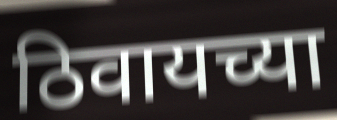
ठिवायच्या